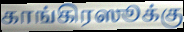
காங்கிரஸூக்கு